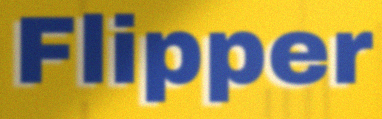
Flipper